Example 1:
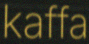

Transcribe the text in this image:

kaffa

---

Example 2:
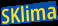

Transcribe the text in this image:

SKlima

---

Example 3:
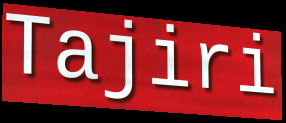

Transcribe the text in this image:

Tajiri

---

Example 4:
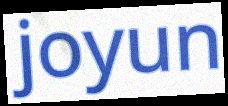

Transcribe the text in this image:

joyun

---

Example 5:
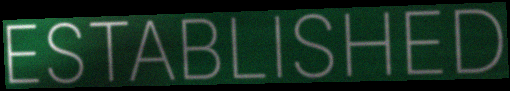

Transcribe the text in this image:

ESTABLISHED